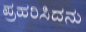
ಪ್ರಹರಿಸಿದನು